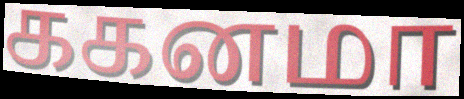
ககனமா